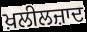
ਖ਼ਲੀਲਜ਼ਾਦ